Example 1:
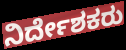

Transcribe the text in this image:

ನಿರ್ದೇಶಕರು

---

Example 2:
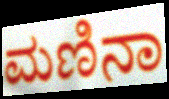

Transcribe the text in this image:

ಮಣಿನಾ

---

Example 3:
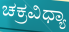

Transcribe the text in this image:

ಚಕ್ರವಿಧ್ಯಾ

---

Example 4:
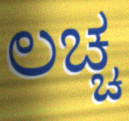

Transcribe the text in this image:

ಲಚ್ಚ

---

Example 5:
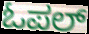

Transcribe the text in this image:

ಓಪಲ್